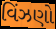
વિંઝણો